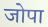
जोपा